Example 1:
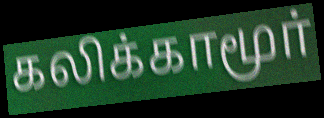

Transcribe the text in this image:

கலிக்காமூர்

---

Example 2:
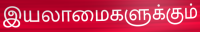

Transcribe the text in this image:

இயலாமைகளுக்கும்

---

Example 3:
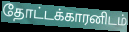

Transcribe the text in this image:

தோட்டக்காரனிடம்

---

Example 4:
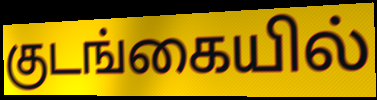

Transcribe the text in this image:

குடங்கையில்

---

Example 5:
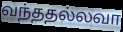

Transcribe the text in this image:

வந்ததல்லவா